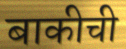
बाकीची